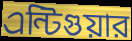
এন্টিগুয়ার